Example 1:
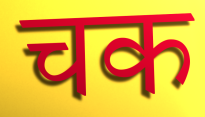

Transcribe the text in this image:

चक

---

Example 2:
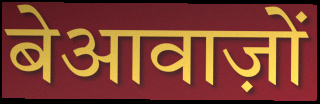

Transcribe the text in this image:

बेआवाज़ों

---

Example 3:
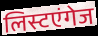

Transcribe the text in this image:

लिस्टएंगेज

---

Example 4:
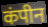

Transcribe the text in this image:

कंपीन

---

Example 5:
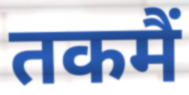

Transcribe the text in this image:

तकमैं